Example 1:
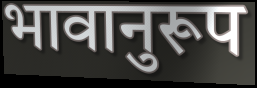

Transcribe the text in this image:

भावानुरूप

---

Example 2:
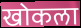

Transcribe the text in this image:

खोकला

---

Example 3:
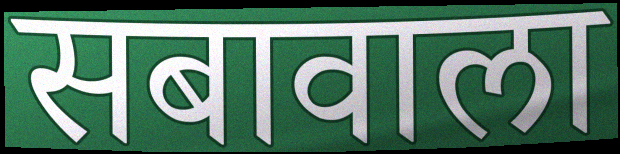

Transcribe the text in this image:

सबावाला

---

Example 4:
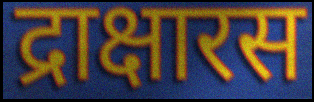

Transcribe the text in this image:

द्राक्षारस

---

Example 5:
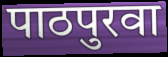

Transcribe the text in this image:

पाठपुरवा